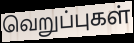
வெறுப்புகள்